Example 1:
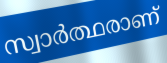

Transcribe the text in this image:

സ്വാർത്ഥരാണ്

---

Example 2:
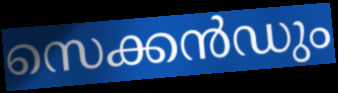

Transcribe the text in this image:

സെക്കൻഡും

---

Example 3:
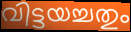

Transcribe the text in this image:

വിട്ടയച്ചതും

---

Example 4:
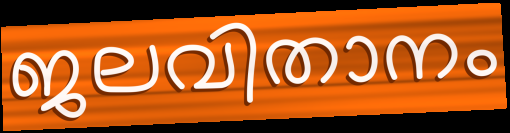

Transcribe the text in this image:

ജലവിതാനം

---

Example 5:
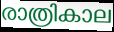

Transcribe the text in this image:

രാത്രികാല